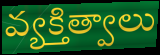
వ్యక్తిత్వాలు